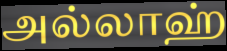
அல்லாஹ்